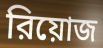
রিয়োজ